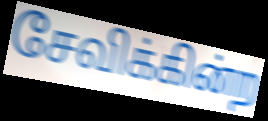
சேவிக்கின்ற